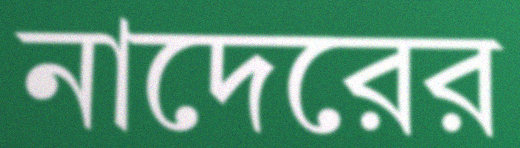
নাদেরের